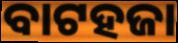
ବାଟହଜା